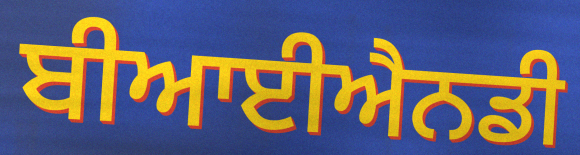
ਬੀਆਈਐਨਡੀ